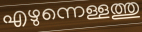
എഴുന്നെള്ളത്തു